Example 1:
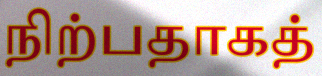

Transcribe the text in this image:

நிற்பதாகத்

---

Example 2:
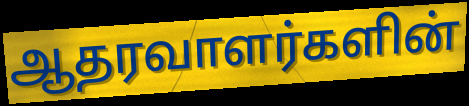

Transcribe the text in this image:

ஆதரவாளர்களின்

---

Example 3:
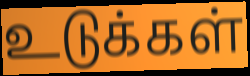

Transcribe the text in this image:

உடுக்கள்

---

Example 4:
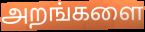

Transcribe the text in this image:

அறங்களை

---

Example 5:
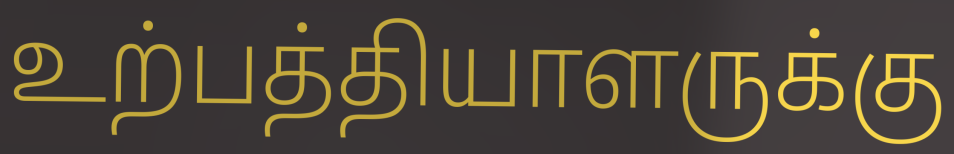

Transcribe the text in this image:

உற்பத்தியாளருக்கு